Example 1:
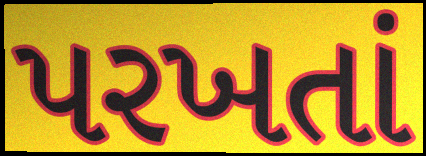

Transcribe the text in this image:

પરખતાં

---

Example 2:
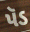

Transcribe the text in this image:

પૅડ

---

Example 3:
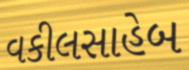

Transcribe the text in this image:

વકીલસાહેબ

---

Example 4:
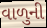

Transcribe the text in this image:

વાળુની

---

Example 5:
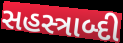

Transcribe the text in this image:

સહસ્ત્રાબ્દી